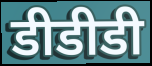
डीडीडी